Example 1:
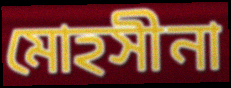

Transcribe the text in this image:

মোহসীনা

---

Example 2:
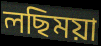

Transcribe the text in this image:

লছিময়া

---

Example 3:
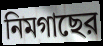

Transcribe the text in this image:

নিমগাছের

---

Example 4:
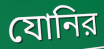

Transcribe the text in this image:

যোনির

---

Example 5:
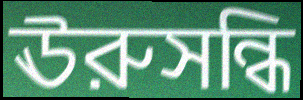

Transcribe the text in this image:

ঊরুসন্ধি